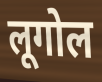
लूगोल